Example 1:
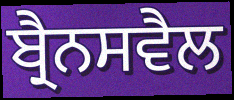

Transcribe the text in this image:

ਬ੍ਰੈਨਸਵੈਲ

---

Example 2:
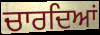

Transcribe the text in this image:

ਚਾਰਦਿਆਂ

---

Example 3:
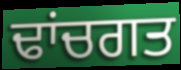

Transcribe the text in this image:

ਢਾਂਚਗਤ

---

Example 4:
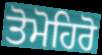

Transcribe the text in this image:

ਤੋਮੋਹਿਰੋ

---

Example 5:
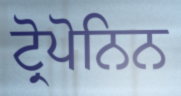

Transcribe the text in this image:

ਟ੍ਰੋਪੋਨਿਨ